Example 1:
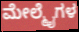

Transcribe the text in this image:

ಮೇಲ್ಮೈಗಳ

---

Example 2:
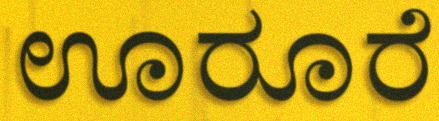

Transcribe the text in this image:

ಊರೂರೆ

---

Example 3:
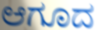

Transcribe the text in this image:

ಆಗೂದ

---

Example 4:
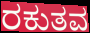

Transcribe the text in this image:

ರಕುತವ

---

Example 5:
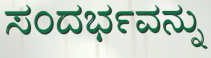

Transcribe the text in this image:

ಸಂದರ್ಭವನ್ನು